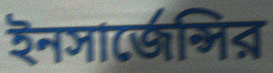
ইনসার্জেন্সির